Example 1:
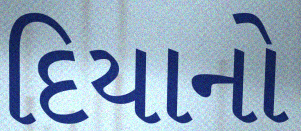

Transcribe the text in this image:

દિયાનો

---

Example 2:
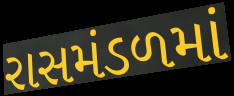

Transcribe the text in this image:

રાસમંડળમાં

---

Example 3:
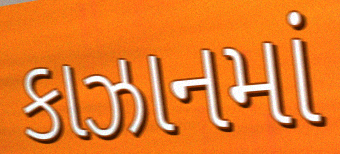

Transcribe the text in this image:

કાઝાનમાં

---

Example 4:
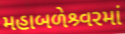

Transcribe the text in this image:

મહાબળેશ્ર્વરમાં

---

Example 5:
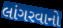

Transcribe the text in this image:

લાંગરવાનો